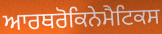
ਆਰਥਰੋਕਿਨੇਮੈਟਿਕਸ